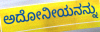
ಅದೋನೀಯನನ್ನು